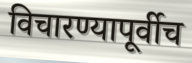
विचारण्यापूर्वीच